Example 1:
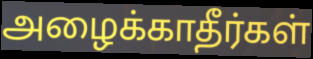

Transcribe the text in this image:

அழைக்காதீர்கள்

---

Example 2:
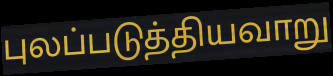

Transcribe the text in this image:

புலப்படுத்தியவாறு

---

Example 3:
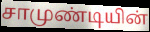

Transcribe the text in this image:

சாமுண்டியின்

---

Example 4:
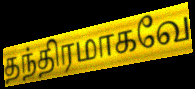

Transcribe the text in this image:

தந்திரமாகவே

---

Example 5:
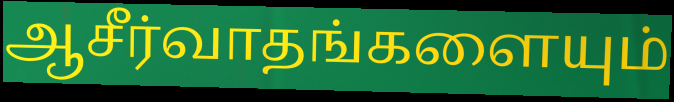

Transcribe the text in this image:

ஆசீர்வாதங்களையும்